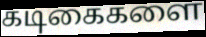
கடிகைகளை